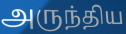
அருந்திய